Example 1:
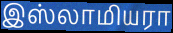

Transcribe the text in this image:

இஸ்லாமியரா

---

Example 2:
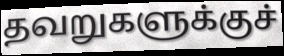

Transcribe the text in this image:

தவறுகளுக்குச்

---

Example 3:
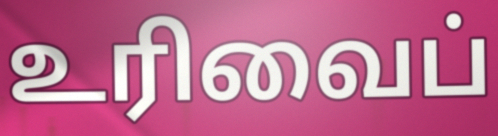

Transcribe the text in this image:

உரிவைப்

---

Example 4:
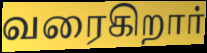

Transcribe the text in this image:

வரைகிறார்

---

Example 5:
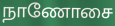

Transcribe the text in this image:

நாணோசை